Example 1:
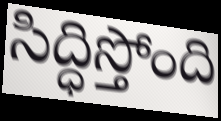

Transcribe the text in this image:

సిద్ధిస్తోంది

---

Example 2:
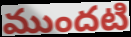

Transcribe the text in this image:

ముందటి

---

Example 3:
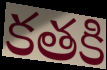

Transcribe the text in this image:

కతకి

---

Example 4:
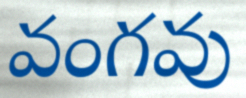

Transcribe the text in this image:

వంగవు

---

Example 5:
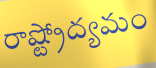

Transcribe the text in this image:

రాష్ట్రోద్యమం